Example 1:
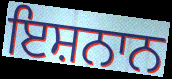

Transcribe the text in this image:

ਇਸ਼ਨਾਨ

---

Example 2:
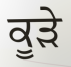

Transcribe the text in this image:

ਕੂੜੇ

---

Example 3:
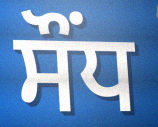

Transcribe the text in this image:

ਸੌਂਧ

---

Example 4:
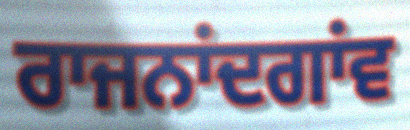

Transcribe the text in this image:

ਰਾਜਨਾਂਦਗਾਂਵ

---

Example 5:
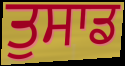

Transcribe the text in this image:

ਤੁਸਾਡ